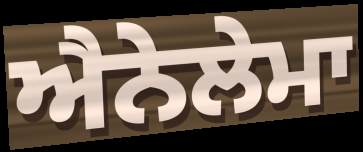
ਐਨੇਲੇਮਾ